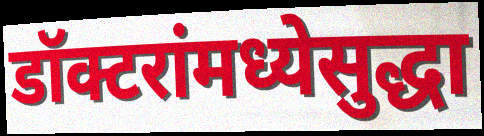
डॉक्टरांमध्येसुद्धा